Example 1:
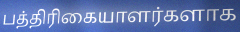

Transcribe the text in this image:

பத்திரிகையாளர்களாக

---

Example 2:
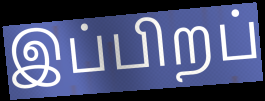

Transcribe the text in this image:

இப்பிறப்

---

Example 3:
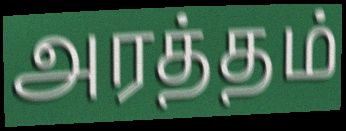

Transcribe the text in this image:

அரத்தம்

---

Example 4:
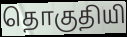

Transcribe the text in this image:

தொகுதியி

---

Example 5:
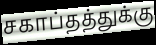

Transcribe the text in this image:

சகாப்தத்துக்கு